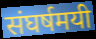
संघर्षमयी